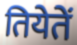
तियेतें